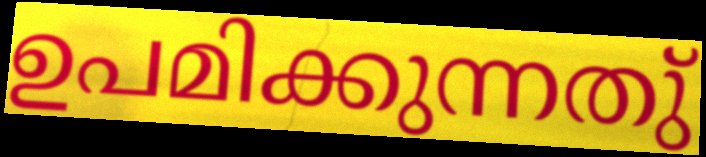
ഉപമിക്കുന്നതു്